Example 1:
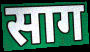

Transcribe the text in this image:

साग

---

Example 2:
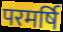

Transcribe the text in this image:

परमर्षि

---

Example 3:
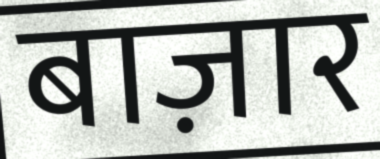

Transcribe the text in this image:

बाज़ार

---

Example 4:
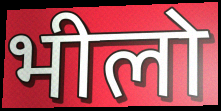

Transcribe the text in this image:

भीलो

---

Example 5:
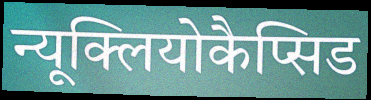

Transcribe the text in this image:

न्यूक्लियोकैप्सिड